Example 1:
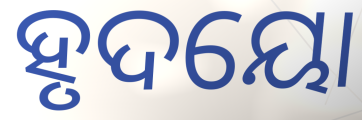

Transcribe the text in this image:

ହୃଦୟୋ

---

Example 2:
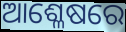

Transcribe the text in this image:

ଆଶ୍ଳେଷରେ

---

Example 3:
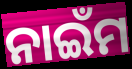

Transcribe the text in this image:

ନାଇଁମ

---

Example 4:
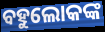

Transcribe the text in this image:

ବହୁଲୋକଙ୍କ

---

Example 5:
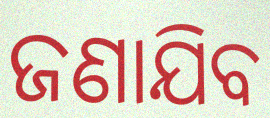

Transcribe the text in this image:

ଜଣାଯିବ